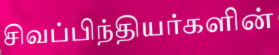
சிவப்பிந்தியர்களின்